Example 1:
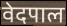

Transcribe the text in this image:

वेदपाल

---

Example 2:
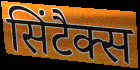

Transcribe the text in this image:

सिंटैक्स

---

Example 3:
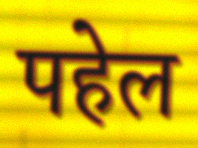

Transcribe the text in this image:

पहेल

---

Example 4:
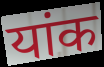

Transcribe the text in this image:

यांक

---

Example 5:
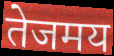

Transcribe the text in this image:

तेजमय